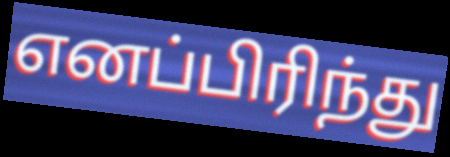
எனப்பிரிந்து